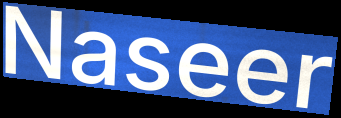
Naseer